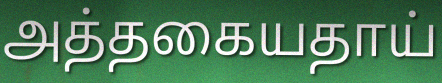
அத்தகையதாய்